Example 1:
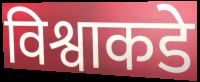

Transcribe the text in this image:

विश्वाकडे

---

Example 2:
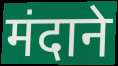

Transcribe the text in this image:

मंदाने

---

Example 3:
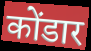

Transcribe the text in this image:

कोंडार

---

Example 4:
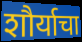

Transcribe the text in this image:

शौर्याचा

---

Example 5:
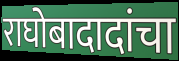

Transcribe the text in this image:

राघोबादादांचा